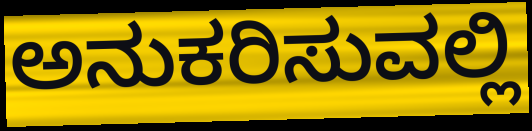
ಅನುಕರಿಸುವಲ್ಲಿ